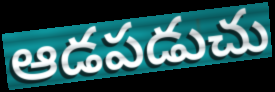
ఆడపడుచు